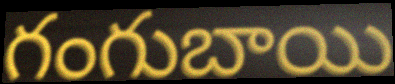
గంగుబాయి